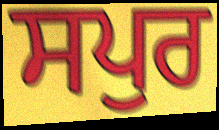
ਸਪੁਰ